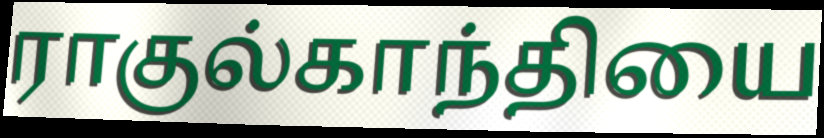
ராகுல்காந்தியை